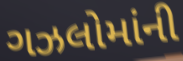
ગઝલોમાંની